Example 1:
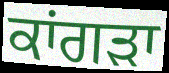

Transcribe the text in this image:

ਕਾਂਗਡ਼ਾ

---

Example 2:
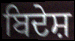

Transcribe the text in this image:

ਬਿਦੇਸ਼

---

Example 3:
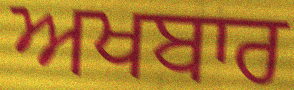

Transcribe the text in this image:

ਅਖਬਾਰ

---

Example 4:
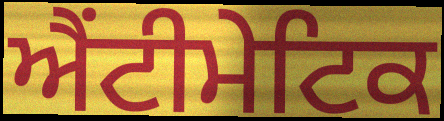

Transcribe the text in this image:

ਐਂਟੀਮੇਟਿਕ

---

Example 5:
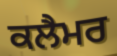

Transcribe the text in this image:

ਕਲੈਮਰ